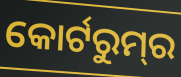
କୋର୍ଟରୁମ୍‌ର